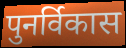
पुनर्विकास